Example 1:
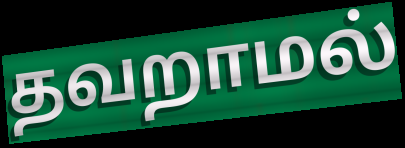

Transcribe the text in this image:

தவறாமல்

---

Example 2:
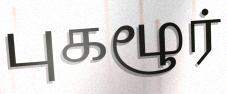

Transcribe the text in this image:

புகழூர்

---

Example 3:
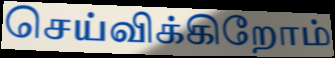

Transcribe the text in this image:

செய்விக்கிறோம்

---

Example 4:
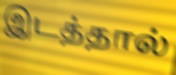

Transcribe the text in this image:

இடத்தால்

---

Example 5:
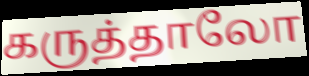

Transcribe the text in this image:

கருத்தாலோ